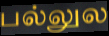
பல்லுல